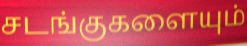
சடங்குகளையும்